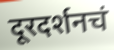
दूरदर्शनचं